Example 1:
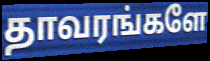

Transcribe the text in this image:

தாவரங்களே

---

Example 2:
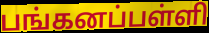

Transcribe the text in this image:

பங்கனப்பள்ளி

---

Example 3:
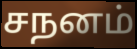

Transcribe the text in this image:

சநனம்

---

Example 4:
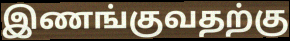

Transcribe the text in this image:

இணங்குவதற்கு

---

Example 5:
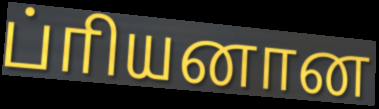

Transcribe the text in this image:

ப்ரியனான